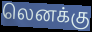
லெனக்கு